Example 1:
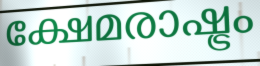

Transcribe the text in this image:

ക്ഷേമരാഷ്ട്രം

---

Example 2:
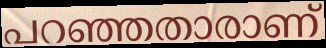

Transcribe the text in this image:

പറഞ്ഞതാരാണ്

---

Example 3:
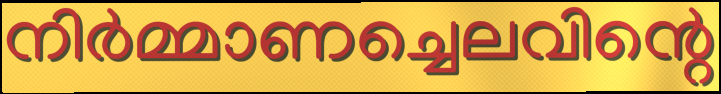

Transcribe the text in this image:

നിർമ്മാണച്ചെലവിന്റെ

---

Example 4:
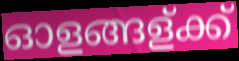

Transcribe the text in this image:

ഓളങ്ങള്ക്ക്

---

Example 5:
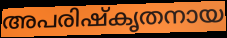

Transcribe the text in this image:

അപരിഷ്കൃതനായ